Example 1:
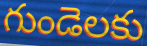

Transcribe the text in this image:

గుండెలకు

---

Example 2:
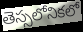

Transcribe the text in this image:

తెస్సలోనికలో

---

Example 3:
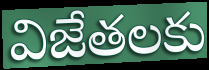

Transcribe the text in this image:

విజేతలకు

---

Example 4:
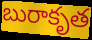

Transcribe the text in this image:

బురాకృత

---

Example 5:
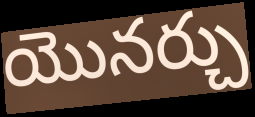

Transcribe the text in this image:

యొనర్చు